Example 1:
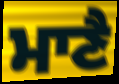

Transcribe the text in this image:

ਮਾਣੈ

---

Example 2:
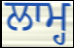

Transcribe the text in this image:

ਲਾਮ੍ਹ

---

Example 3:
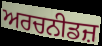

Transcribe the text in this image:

ਅਰਚਨੀਡਜ਼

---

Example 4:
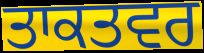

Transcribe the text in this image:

ਤਾਕਤਵਰ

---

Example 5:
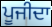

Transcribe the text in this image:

ਪੂਜੀਦਾ